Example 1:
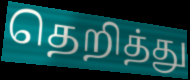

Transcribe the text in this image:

தெறித்து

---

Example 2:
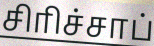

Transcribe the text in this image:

சிரிச்சாப்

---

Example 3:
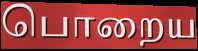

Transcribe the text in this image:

பொறைய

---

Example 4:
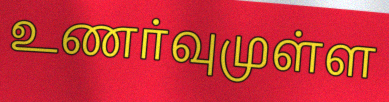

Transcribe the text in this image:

உணர்வுமுள்ள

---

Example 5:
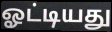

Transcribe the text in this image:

ஓட்டியது